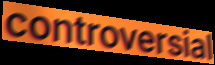
controversial